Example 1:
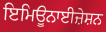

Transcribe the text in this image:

ਇਮਿਊਨਾਈਜ਼ੇਸ਼ਨ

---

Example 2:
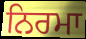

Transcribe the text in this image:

ਨਿਰਮਾ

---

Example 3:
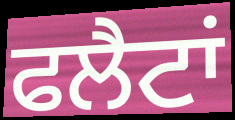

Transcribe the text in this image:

ਫਲੈਟਾਂ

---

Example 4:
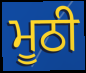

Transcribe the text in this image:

ਮੂਠੀ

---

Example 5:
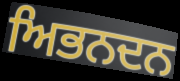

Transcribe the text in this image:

ਅਿਭਨਦਨ